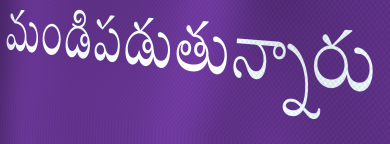
మండిపడుతున్నారు